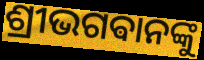
ଶ୍ରୀଭଗଵାନଙ୍କୁ